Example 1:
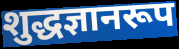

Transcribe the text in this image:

शुद्धज्ञानरूप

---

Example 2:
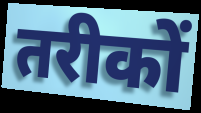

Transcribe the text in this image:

तरीकों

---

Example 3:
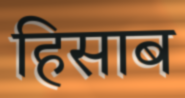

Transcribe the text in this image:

हिसाब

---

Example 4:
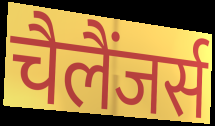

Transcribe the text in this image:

चैलैंजर्स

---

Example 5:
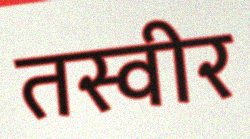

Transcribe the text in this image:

तस्वीर